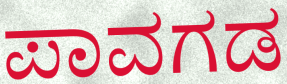
ಪಾವಗಡ